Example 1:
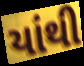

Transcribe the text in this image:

યાંથી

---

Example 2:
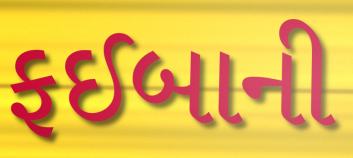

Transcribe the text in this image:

ફઈબાની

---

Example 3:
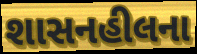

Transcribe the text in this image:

શાસનહીલના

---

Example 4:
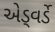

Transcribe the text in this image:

એડ્વર્ડે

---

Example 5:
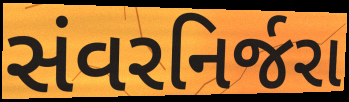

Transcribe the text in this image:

સંવરનિર્જરા